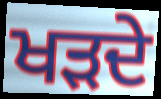
ਖੜਦੇ